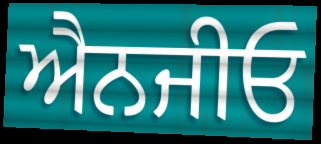
ਐਨਜੀਓ